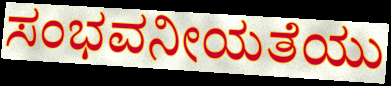
ಸಂಭವನೀಯತೆಯು